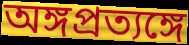
অঙ্গপ্রত্যঙ্গে